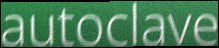
autoclave